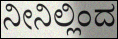
ನೀನಿಲ್ಲಿಂದ